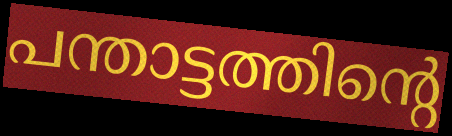
പന്താട്ടത്തിന്റെ